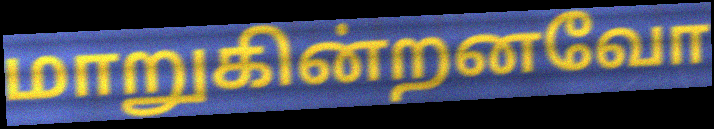
மாறுகின்றனவோ